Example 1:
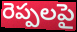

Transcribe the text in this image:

రెప్పలపై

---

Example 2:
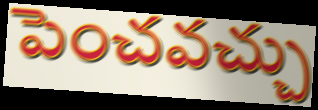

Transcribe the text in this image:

పెంచవచ్చు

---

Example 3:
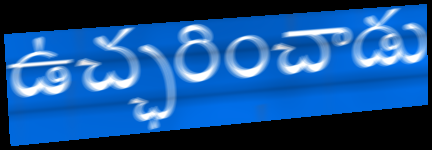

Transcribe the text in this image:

ఉచ్ఛరించాడు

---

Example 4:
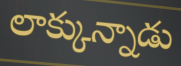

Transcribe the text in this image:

లాక్కున్నాడు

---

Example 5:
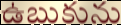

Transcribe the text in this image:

ఉబుకును